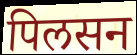
पिलसन